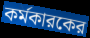
কর্মকারকের